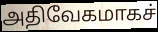
அதிவேகமாகச்